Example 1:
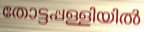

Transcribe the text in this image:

തോട്ടപ്പള്ളിയിൽ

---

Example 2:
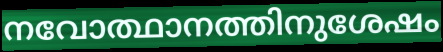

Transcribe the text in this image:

നവോത്ഥാനത്തിനുശേഷം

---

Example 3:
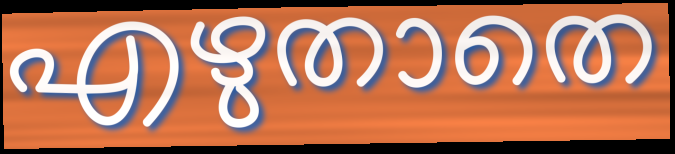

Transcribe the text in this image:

എഴുതാതെ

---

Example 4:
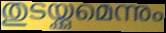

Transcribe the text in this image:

തുടയ്ക്കുമെന്നും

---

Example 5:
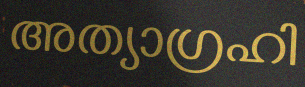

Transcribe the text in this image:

അത്യാഗ്രഹി